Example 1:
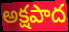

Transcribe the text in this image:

అక్షపాద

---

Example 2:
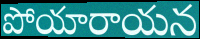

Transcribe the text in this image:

పోయారాయన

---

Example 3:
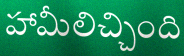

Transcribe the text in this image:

హామీలిచ్చింది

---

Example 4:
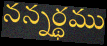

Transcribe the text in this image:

నన్నర్థము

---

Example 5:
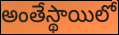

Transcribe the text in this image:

అంతేస్థాయిలో